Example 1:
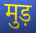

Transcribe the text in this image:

मुड़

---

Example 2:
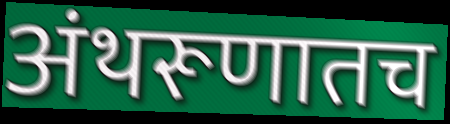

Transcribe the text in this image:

अंथरूणातच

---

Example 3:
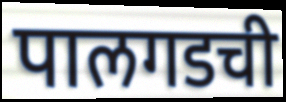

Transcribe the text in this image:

पालगडची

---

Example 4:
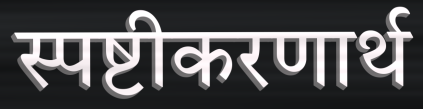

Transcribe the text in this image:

स्पष्टीकरणार्थ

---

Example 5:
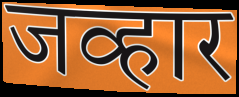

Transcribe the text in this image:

जव्हार